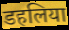
डहलिया